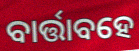
ବାର୍ତ୍ତାବହେ